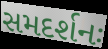
સમદર્શનઃ